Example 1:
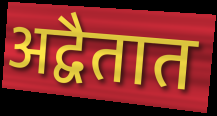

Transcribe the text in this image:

अद्वैतात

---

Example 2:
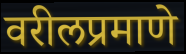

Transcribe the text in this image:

वरीलप्रमाणे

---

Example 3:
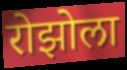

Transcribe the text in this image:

रोझोला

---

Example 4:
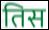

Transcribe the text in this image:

तिस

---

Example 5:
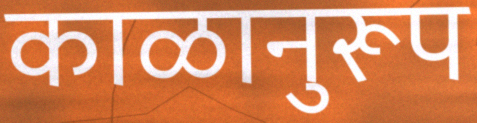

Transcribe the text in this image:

काळानुरूप